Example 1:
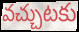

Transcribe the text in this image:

వచ్చుటకు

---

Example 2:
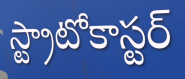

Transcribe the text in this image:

స్ట్రాటోకాస్టర్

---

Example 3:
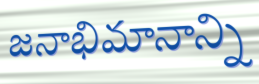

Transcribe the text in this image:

జనాభిమానాన్ని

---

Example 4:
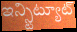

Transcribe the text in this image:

ఇన్స్టిట్యూట్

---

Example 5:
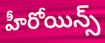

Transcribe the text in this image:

హీరోయిన్స్